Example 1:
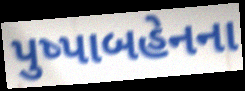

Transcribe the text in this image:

પુષ્પાબહેનના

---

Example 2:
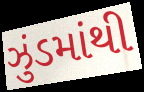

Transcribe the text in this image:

ઝુંડમાંથી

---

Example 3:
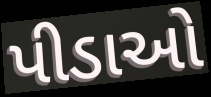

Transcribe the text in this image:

પીડાઓ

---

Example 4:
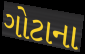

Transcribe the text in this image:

ગોટાના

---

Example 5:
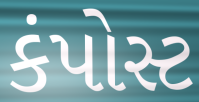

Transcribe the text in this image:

કંપોસ્ટ